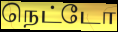
நெட்டோ